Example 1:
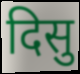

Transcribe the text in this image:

दिसु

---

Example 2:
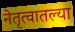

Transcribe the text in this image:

नेतृत्वातल्या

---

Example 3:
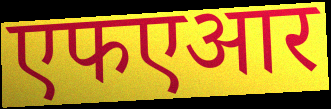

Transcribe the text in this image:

एफएआर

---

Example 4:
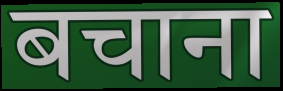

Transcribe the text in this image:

बचाना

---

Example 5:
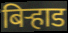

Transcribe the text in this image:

बिर्‍हाड